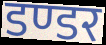
डण्डर